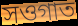
সওগাত